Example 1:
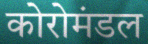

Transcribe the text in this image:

कोरोमंडल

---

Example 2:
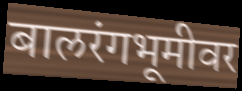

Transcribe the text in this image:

बालरंगभूमीवर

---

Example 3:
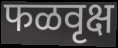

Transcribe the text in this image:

फळवृक्ष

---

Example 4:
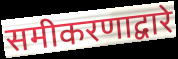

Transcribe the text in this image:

समीकरणाद्वारे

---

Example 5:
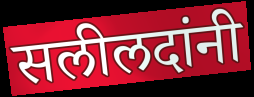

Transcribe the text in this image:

सलीलदांनी